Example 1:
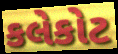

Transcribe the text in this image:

કલેકોટ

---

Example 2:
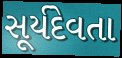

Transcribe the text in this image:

સૂર્યદેવતા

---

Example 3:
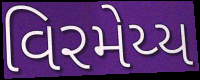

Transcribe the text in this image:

વિરમેય્ય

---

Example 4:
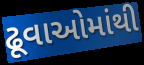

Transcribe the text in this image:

ઢૂવાઓમાંથી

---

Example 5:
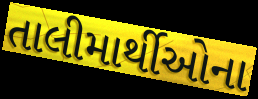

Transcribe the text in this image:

તાલીમાર્થીઓના